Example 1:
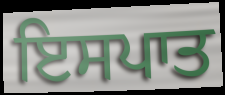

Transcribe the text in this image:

ਇਸਪਾਤ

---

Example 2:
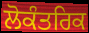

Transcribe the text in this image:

ਲੋਕੰਤਰਿਕ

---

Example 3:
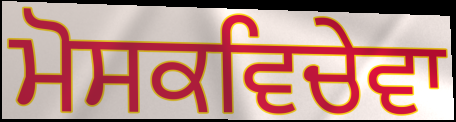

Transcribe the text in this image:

ਮੋਸਕਵਿਚੇਵਾ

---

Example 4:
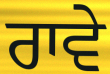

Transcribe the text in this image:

ਰਾਵੇ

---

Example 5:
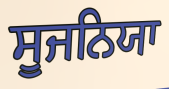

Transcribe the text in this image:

ਸੂਜਨਿਯਾ